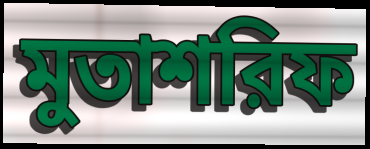
মুতাশরিফ